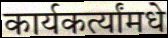
कार्यकर्त्यांमधे